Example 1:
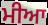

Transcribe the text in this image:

ਮੀਆ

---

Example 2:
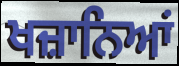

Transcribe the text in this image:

ਖਜ਼ਾਨਿਆਂ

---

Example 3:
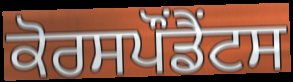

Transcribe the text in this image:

ਕੋਰਸਪੌਂਡੈਂਟਸ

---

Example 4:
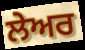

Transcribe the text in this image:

ਲੇਅਰ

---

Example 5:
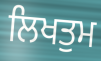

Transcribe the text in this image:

ਲਿਖਤੁਮ